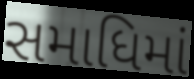
સમાધિમાં